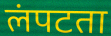
लंपटता